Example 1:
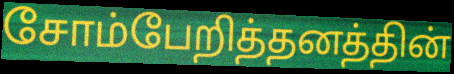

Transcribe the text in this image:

சோம்பேறித்தனத்தின்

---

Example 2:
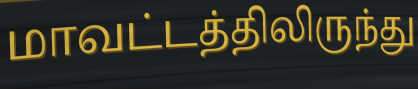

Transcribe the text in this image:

மாவட்டத்திலிருந்து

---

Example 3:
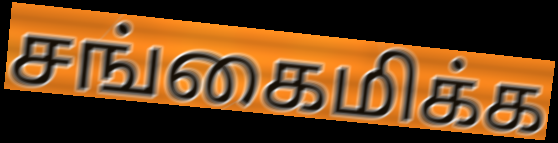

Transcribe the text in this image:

சங்கைமிக்க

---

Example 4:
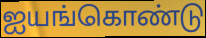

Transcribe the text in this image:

ஐயங்கொண்டு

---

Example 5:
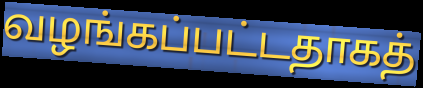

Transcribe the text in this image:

வழங்கப்பட்டதாகத்